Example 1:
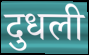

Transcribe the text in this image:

दुधली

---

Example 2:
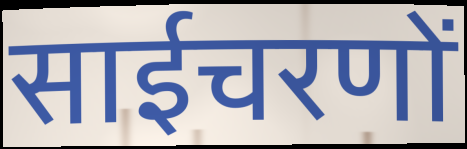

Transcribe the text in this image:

साईचरणों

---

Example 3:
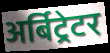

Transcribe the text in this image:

अर्बिट्रेटर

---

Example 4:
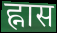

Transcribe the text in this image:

ह्नास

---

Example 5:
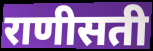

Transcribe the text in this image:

राणीसती